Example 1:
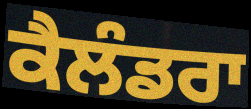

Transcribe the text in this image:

ਕੈਲੰਡਰਾ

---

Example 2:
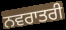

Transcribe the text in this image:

ਨਵਰਾਤਰੀ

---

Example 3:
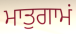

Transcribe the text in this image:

ਮਾਤੁਗਾਮਂ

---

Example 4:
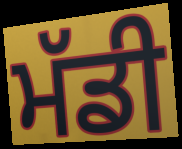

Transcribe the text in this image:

ਮੱਡੀ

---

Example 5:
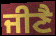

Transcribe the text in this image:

ਜੀਣੈ